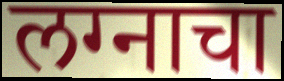
लग्नाचा